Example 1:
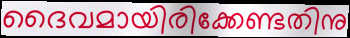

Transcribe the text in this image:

ദൈവമായിരിക്കേണ്ടതിനു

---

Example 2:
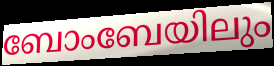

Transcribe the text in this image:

ബോംബേയിലും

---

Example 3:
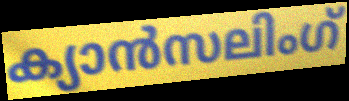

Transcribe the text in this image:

ക്യാൻസലിംഗ്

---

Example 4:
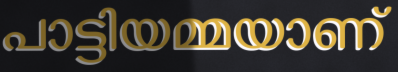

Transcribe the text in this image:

പാട്ടിയമ്മയാണ്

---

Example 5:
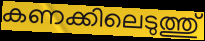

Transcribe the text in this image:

കണക്കിലെടുത്തു്